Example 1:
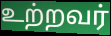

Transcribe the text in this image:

உற்றவர்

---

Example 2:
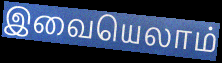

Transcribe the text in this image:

இவையெலாம்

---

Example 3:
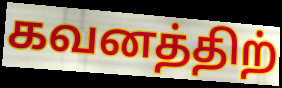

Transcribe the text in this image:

கவனத்திற்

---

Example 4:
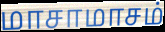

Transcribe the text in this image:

மாசாமாசம்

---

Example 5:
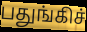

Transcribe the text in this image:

பதுங்கிச்